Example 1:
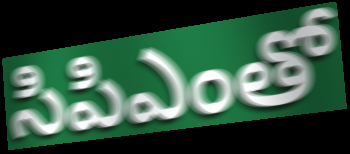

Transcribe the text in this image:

సిపిఎంతో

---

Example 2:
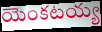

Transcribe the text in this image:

యెంకటయ్య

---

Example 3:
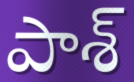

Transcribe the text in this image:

పాశ్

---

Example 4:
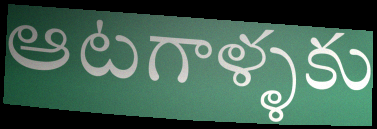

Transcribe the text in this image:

ఆటగాళ్ళకు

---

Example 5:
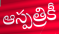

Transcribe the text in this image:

ఆస్పత్రికీ